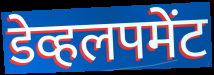
डेव्‍हलपमेंट